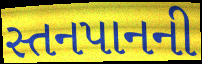
સ્તનપાનની